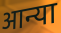
आन्या